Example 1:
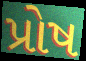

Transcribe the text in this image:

પ્રોષ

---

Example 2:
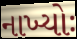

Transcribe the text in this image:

નાખ્યોઃ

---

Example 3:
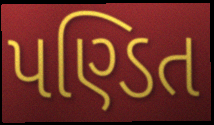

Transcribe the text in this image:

પણ્ડિત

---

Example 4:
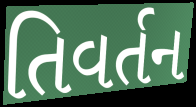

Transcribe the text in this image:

તિવર્તન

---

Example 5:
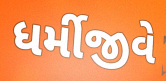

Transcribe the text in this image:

ધર્મીજીવે